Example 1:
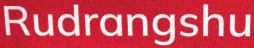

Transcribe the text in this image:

Rudrangshu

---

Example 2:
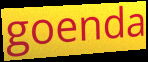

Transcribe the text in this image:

goenda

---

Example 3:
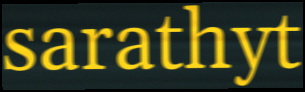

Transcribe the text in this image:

sarathyt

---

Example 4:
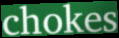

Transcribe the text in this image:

chokes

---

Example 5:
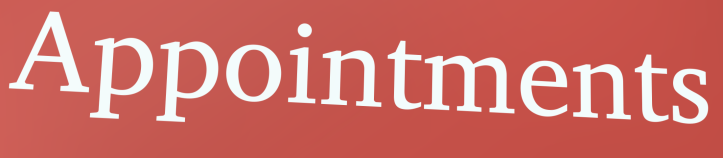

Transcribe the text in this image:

Appointments